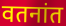
वतनांत